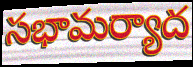
సభామర్యాద